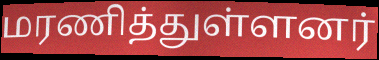
மரணித்துள்ளனர்